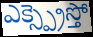
ఎక్స్ప్రెస్తో